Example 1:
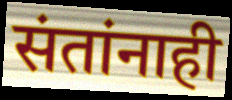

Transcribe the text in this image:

संतांनाही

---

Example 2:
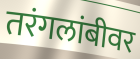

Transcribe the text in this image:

तरंगलांबीवर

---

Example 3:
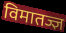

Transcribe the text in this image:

विमातज्ज्ञ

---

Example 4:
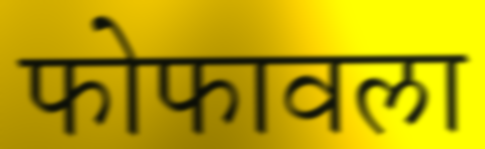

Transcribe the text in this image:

फोफावला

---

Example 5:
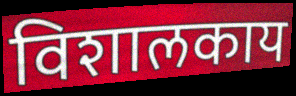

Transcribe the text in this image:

विशालकाय